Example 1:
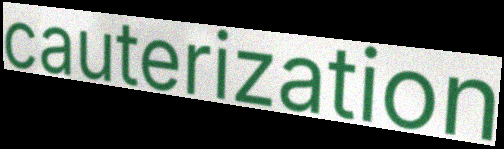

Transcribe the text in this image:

cauterization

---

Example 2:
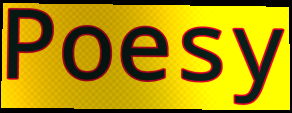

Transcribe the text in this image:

Poesy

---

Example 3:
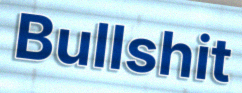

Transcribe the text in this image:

Bullshit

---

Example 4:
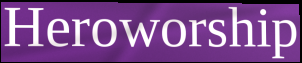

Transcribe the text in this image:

Heroworship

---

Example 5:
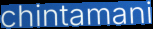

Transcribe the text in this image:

chintamani